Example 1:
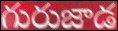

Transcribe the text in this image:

గురుజాడ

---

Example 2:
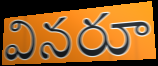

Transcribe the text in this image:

వినరూ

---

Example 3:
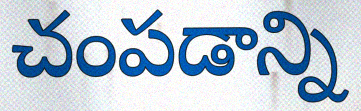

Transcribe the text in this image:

చంపడాన్ని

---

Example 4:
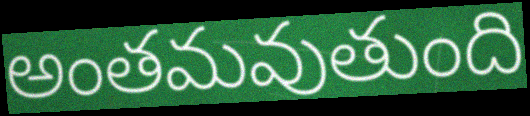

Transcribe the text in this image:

అంతమవుతుంది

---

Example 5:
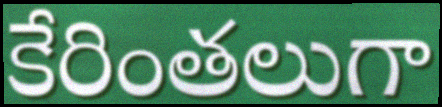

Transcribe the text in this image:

కేరింతలుగా